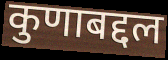
कुणाबद्दल